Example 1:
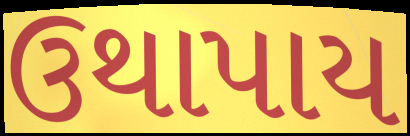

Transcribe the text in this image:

ઉથાપાય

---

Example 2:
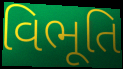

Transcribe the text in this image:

વિભૂતિ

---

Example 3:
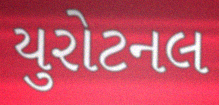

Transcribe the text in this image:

યુરોટનલ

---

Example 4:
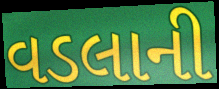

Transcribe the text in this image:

વડલાની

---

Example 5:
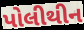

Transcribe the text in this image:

પોલીથીન